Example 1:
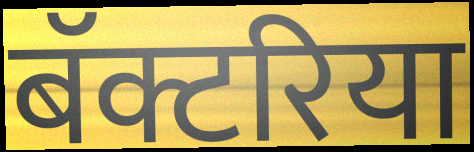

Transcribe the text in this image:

बॅक्टरिया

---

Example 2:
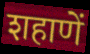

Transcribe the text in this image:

शहाणें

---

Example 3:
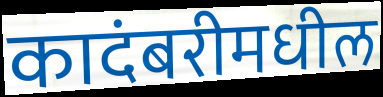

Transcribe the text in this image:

कादंबरीमधील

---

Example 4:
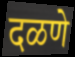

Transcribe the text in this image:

दळणे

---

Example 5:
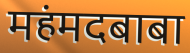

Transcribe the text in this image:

महंमदबाबा